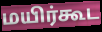
மயிர்கூட